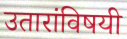
उतारांविषयी